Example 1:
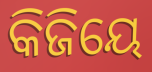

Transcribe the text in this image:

କିଜିୟେ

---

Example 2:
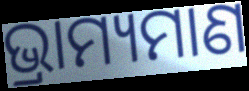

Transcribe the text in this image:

ଭ୍ରାମ୍ୟମାଣ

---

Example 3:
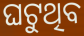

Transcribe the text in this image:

ଘଟୁଥିବ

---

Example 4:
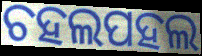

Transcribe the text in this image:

ଚହଲପହଲ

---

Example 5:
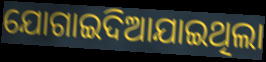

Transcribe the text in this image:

ଯୋଗାଇଦିଆଯାଇଥିଲା